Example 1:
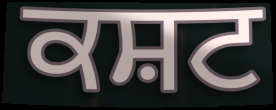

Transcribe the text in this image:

ਕਸ਼ਟ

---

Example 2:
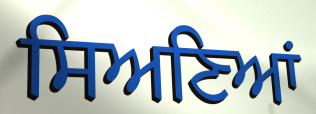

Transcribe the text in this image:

ਸਿਅਣਿਆਂ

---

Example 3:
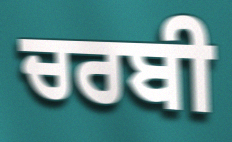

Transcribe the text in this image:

ਚਰਬੀ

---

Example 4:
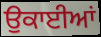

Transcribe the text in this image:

ਉਕਾਈਆਂ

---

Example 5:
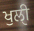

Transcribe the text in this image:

ਖੁਲੀੑ